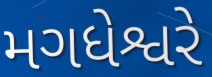
મગધેશ્વરે